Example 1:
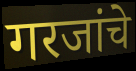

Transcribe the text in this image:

गरजांचे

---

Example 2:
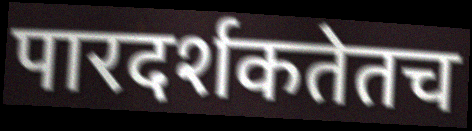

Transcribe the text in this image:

पारदर्शकतेतच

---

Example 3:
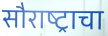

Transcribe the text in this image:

सौराष्ट्राचा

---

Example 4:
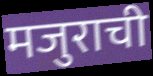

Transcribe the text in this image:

मजुराची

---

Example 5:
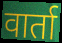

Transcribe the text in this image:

वार्ता